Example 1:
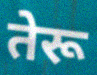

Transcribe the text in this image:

तेरू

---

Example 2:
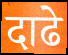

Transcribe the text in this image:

दाढे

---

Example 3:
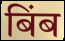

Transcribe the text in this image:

बिंब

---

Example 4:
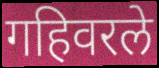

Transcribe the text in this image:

गहिवरले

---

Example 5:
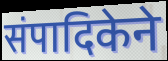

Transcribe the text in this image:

संपादिकेने